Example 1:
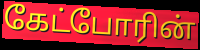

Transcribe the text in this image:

கேட்போரின்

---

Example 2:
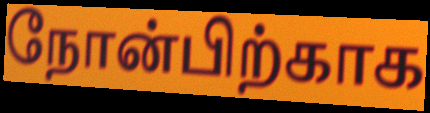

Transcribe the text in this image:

நோன்பிற்காக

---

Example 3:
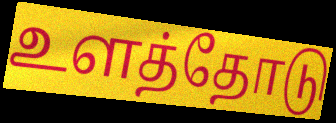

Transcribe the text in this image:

உளத்தோடு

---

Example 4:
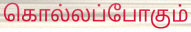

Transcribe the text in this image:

கொல்லப்போகும்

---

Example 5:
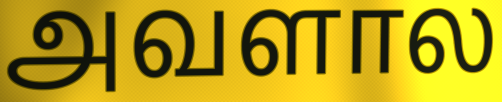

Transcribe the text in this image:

அவளால